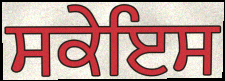
ਸਕੇਇਸ